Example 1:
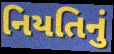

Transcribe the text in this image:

નિયતિનું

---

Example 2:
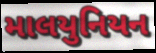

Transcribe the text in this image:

માલયુનિયન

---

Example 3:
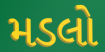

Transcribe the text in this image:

મડલો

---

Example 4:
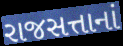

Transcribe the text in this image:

રાજસત્તાનાં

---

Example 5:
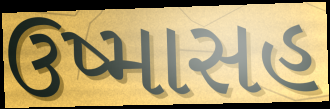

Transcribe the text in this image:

ઉષ્માસહ